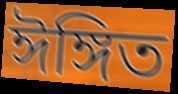
ঈঙ্গিত